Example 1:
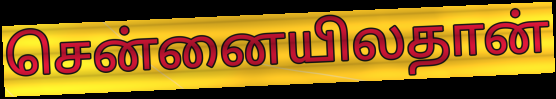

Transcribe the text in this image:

சென்னையிலதான்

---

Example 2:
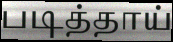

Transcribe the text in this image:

படித்தாய்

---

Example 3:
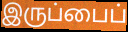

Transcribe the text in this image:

இருப்பைப்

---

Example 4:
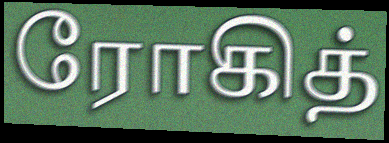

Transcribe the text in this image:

ரோகித்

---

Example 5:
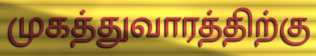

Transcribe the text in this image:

முகத்துவாரத்திற்கு